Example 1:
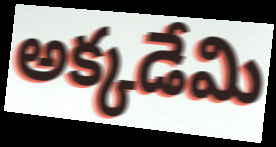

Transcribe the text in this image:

అక్కడేమి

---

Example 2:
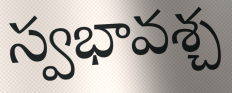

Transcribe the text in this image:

స్వభావశ్చ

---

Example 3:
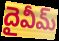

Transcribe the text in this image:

దైవీమ్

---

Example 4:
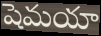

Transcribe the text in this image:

షెమయా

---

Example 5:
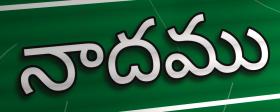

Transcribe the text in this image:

నాదము